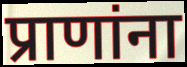
प्राणांना